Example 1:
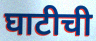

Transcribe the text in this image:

घाटीची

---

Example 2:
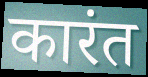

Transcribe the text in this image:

कारंत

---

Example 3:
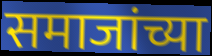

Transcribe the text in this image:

समाजांच्या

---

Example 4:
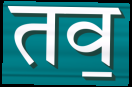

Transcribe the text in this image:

तव॒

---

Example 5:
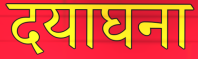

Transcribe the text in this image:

दयाघना